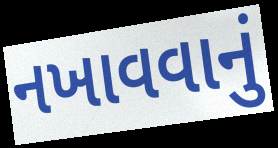
નખાવવાનું